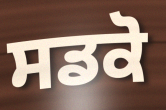
ਸਡਕੋ